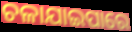
ଚଳାଯାଇପାରେ